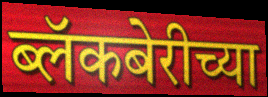
ब्लॅकबेरीच्या